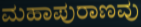
ಮಹಾಪುರಾಣವು